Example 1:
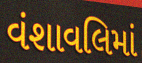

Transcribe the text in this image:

વંશાવલિમાં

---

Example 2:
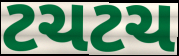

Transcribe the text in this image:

ટચટચ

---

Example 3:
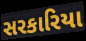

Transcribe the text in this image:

સરકારિયા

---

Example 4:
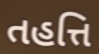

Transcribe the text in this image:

તહત્તિ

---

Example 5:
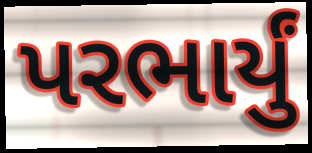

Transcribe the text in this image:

પરભાર્યું